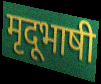
मृदूभाषी